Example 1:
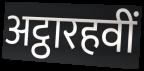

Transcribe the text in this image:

अट्ठारहवीं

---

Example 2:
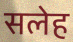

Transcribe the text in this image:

सलेह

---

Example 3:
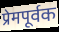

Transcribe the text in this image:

प्रेमपूर्वक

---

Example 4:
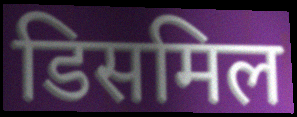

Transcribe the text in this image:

डिसमिल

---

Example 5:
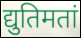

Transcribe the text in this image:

द्युतिमतां